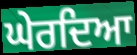
ਘੇਰਦਿਆ